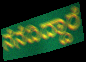
ನೆನೆದಿದ್ದಾರೆ